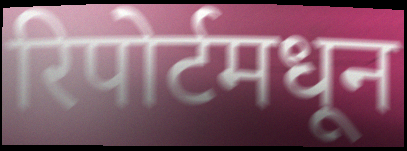
रिपोर्टमधून